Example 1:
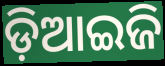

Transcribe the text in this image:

ଡ଼ିଆଇଜି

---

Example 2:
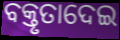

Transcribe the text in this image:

ବକ୍ତୃତାଦେଇ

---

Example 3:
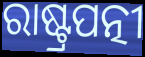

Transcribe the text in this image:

ରାଷ୍ଟ୍ରପତ୍ନୀ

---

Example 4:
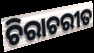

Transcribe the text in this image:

ଚିରାଚରୀତ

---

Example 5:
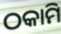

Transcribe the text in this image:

ଠକାମି